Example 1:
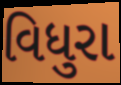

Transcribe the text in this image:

વિધુરા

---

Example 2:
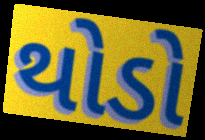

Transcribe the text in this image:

થોડો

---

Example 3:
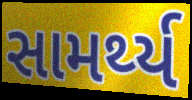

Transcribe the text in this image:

સામર્થ્ય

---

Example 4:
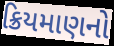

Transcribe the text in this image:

ક્રિયમાણનો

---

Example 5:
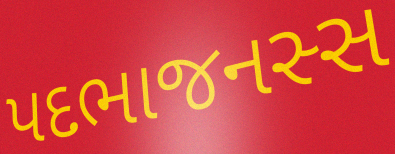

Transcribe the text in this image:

પદભાજનસ્સ